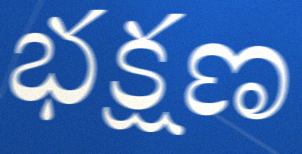
భక్షణ